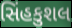
સિંહકુશલ